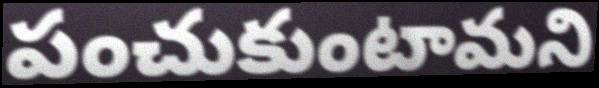
పంచుకుంటామని